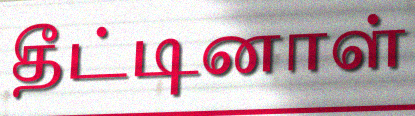
தீட்டினாள்